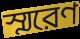
স্মরেণ